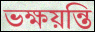
ভক্ষয়ন্তি